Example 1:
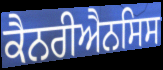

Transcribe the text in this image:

ਕੈਨਰੀਐਨਸਿਸ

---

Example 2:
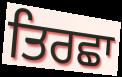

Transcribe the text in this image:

ਤਿਰਛਾ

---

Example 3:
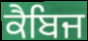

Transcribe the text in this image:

ਕੈਬਿਜ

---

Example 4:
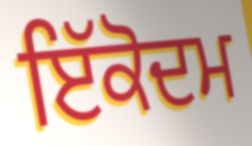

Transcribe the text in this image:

ਇੱਕੋਦਮ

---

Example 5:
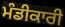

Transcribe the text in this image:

ਮੰਡੀਕਾਰੀ